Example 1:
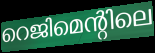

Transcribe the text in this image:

റെജിമെന്റിലെ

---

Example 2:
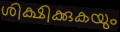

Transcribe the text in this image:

ശിക്ഷിക്കുകയും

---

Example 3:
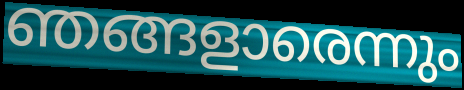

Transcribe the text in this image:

ഞങ്ങളാരെന്നും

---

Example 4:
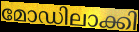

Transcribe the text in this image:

മോഡിലാക്കി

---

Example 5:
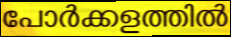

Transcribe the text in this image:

പോർക്കളത്തിൽ